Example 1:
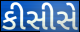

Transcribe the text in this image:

કીસીસે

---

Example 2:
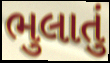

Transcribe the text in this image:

ભુલાતું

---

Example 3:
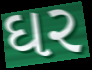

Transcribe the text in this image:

ઘર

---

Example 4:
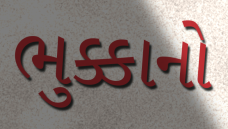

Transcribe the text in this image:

ભુક્કાનો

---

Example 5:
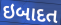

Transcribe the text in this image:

ઇબાદત